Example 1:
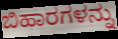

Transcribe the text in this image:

ಬಿಹಾರಗಳನ್ನು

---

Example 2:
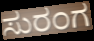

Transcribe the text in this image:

ಸುರಂಗ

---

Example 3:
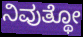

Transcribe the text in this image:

ನಿವುತ್ಥೋ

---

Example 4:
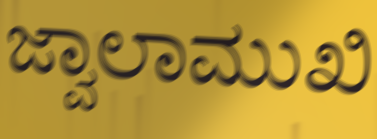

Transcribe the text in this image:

ಜ್ವಾಲಾಮುಖಿ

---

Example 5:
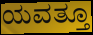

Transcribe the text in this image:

ಯವತ್ತೂ